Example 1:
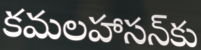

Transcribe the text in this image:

కమలహాసన్‌కు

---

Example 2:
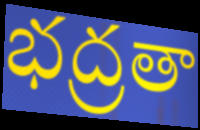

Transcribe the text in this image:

భద్రతా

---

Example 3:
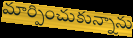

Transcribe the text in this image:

మార్పించుకున్నాను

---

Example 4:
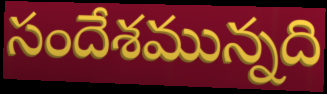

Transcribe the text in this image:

సందేశమున్నది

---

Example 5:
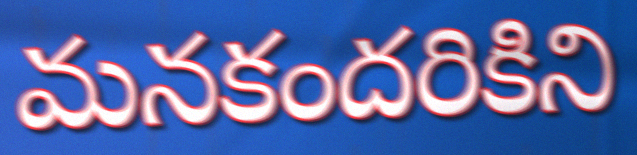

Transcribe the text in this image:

మనకందరికిని